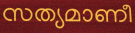
സത്യമാണീ